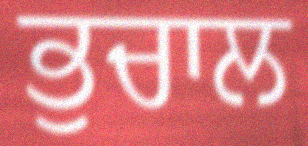
ਭੁਚਾਲ